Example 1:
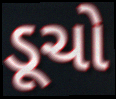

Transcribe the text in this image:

ડૂચો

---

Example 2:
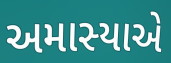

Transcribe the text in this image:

અમાસ્યાએ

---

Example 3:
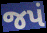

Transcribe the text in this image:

જપં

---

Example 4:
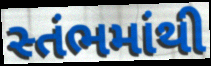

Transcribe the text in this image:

સ્તંભમાંથી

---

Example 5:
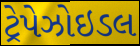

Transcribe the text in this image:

ટ્રેપેઝોઇડલ